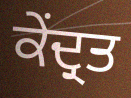
ਕੇਂਦ੍ਰਤ